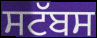
ਸਟੱਬਸ